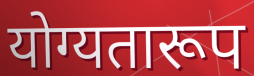
योग्यतारूप